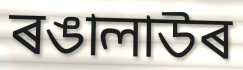
ৰঙালাউৰ